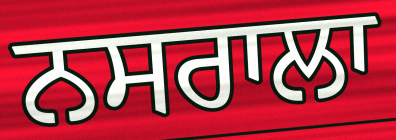
ਨਸਰਾਲਾ